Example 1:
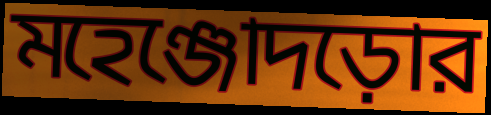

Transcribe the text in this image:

মহেঞ্জোদড়োর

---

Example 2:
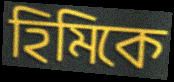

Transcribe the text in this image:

হিমিকে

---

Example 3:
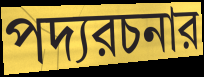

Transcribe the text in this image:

পদ্যরচনার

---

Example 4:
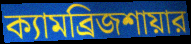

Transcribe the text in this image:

ক্যামব্রিজশায়ার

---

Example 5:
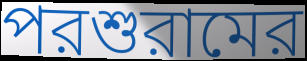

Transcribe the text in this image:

পরশুরামের